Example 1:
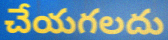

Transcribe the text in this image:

చేయగలదు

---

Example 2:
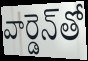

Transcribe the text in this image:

వార్డెన్‌తో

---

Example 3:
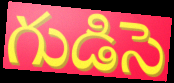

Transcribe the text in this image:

గుడిసె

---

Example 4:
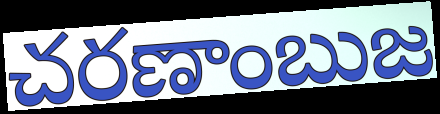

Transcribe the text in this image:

చరణాంబుజ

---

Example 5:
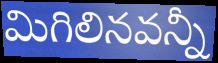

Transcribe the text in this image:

మిగిలినవన్నీ